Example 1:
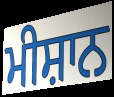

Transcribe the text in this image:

ਮੀਸ਼ਾਨ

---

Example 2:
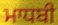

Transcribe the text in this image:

ਮਾਧਬੀ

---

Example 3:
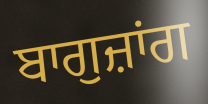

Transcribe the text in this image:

ਬਾਗੁਜ਼ਾਂਗ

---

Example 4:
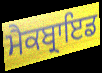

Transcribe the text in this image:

ਮੈਕਬ੍ਰਾਇਡ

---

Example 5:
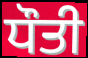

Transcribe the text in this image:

ਧੌਤੀ